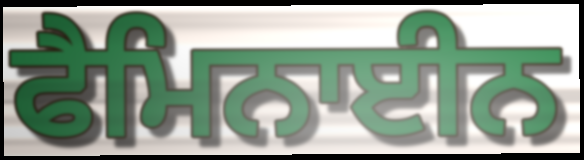
ਫੈਮਿਨਾਈਨ